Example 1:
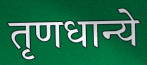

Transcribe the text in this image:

तृणधान्ये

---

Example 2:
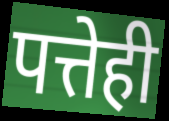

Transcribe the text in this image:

पत्तेही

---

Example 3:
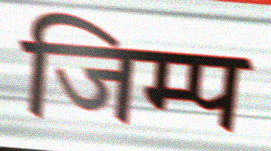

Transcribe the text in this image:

जिम्प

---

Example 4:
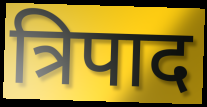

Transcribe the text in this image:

त्रिपाद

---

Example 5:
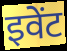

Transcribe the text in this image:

इवेंट